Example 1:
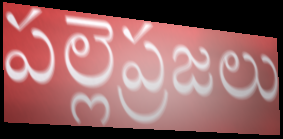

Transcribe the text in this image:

పల్లెప్రజలు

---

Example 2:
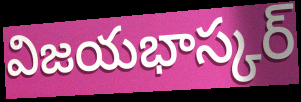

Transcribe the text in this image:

విజయభాస్కర్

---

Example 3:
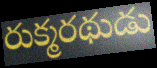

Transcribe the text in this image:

రుక్మరథుడు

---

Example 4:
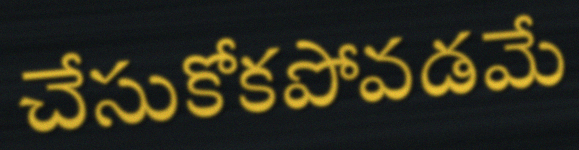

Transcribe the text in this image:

చేసుకోకపోవడమే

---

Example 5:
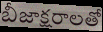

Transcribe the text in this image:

బీజాక్షరాలతో